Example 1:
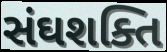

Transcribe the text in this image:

સંઘશક્તિ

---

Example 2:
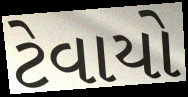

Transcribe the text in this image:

ટેવાયો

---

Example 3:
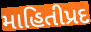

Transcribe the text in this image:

માહિતીપ્રદ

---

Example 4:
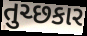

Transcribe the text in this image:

તુચ્છકાર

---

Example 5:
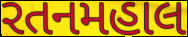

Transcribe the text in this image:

રતનમહાલ